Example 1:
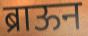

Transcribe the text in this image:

ब्राऊन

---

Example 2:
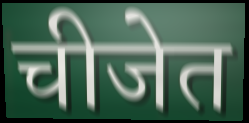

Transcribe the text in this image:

चीजेत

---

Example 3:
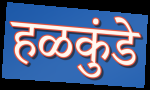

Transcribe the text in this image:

हळकुंडे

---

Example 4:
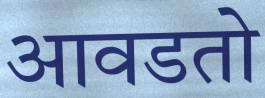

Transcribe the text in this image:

आवडतो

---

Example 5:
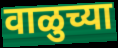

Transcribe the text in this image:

वाळुच्या